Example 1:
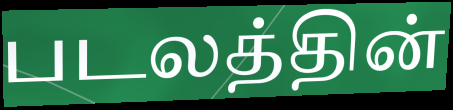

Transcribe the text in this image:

படலத்தின்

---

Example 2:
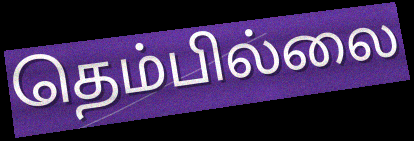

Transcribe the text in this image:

தெம்பில்லை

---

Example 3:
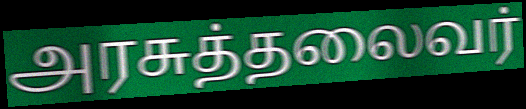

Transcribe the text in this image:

அரசுத்தலைவர்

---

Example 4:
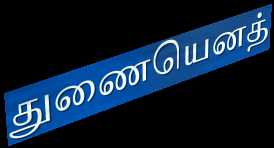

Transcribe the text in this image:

துணையெனத்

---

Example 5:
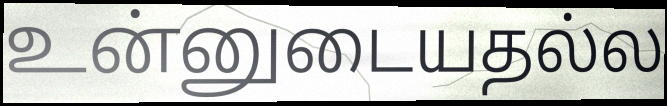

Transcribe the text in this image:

உன்னுடையதல்ல